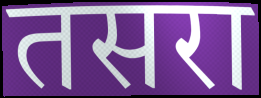
तसरा